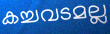
കച്ചവടമല്ല